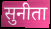
सुनीता